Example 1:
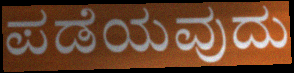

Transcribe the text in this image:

ಪಡೆಯವುದು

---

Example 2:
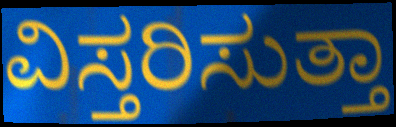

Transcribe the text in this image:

ವಿಸ್ತರಿಸುತ್ತಾ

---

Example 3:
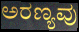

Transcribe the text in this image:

ಅರಣ್ಯವು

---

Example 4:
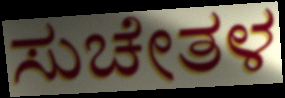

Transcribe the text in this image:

ಸುಚೇತಳ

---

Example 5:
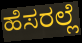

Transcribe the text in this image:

ಹೆಸರಲ್ಲೆ